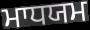
ਮਾਧਯਮ